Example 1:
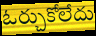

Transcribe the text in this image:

ఓర్చుకోలేదు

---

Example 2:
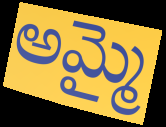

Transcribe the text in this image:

అమ్మై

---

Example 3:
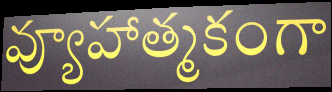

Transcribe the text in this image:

వ్యూహాత్మకంగా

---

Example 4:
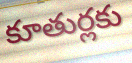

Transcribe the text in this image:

కూతుర్లకు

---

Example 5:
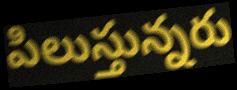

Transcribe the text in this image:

పిలుస్తున్నరు